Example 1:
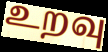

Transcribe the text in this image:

உறவு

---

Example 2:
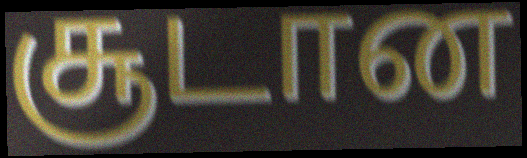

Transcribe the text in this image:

சூடான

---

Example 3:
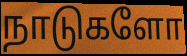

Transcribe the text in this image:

நாடுகளோ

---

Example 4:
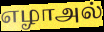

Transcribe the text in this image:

எழாஅல்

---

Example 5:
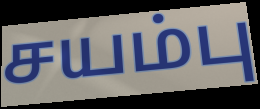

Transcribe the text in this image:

சயம்பு